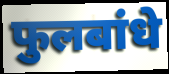
फुलबांधे